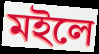
মইলে